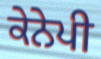
ਕੇਨੇਪੀ